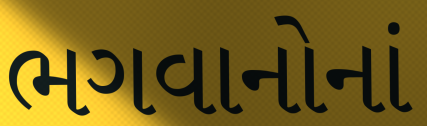
ભગવાનોનાં